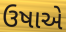
ઉષાએ